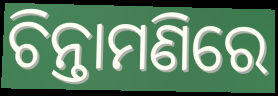
ଚିନ୍ତାମଣିରେ